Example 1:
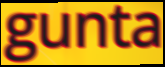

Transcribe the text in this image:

gunta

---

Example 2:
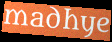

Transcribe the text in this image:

madhye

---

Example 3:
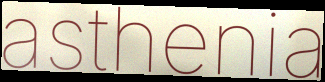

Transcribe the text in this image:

asthenia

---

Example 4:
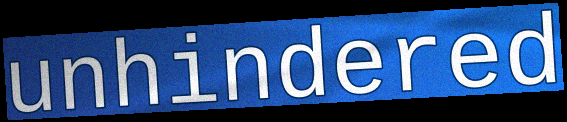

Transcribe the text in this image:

unhindered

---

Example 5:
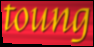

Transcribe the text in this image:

toung